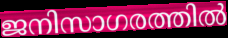
ജനിസാഗരത്തിൽ